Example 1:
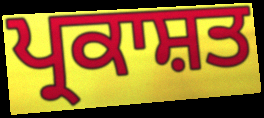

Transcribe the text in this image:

ਪ੍ਰਕਾਸ਼ਤ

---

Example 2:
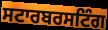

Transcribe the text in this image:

ਸਟਾਰਬਰਸਟਿੰਗ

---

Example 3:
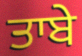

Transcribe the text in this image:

ਤਾਬੇ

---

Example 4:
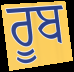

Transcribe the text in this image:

ਰੂਬ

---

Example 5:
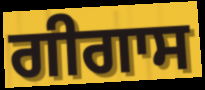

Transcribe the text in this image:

ਗੀਗਾਸ